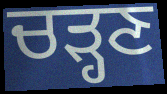
ਚੜ੍ਹਣ